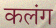
कलंग